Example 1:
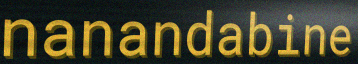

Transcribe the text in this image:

nanandabine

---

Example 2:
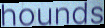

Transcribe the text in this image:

hounds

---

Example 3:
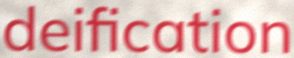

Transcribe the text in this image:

deification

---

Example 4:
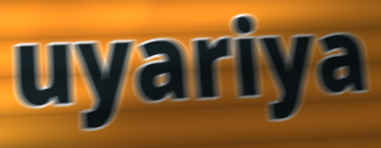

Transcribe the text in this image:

uyariya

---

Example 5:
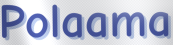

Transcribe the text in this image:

Polaama